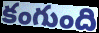
కంగుంది